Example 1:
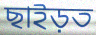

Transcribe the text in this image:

ছাইড়ত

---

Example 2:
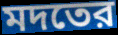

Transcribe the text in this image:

মদতের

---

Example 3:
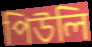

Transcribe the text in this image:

পিউলি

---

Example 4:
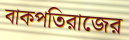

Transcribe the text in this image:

বাকপতিরাজের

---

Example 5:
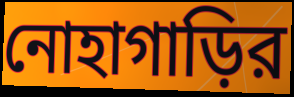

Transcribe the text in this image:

নোহাগাড়ির